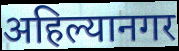
अहिल्यानगर